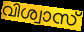
വിശ്വാസ്